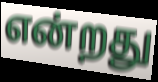
என்றது